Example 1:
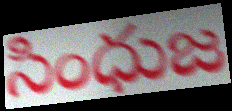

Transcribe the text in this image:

సింధుజ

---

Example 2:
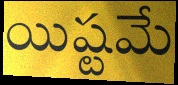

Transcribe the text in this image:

యిష్టమే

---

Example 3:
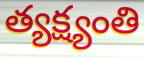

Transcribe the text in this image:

త్యక్ష్యంతి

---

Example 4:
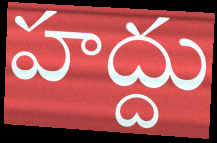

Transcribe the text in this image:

హద్దు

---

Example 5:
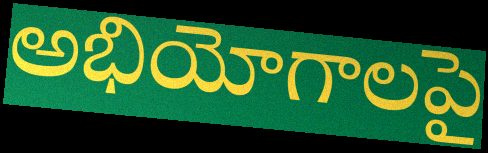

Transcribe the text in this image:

అభియోగాలపై